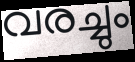
വരച്ചും